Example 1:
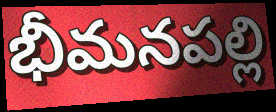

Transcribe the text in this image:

భీమనపల్లి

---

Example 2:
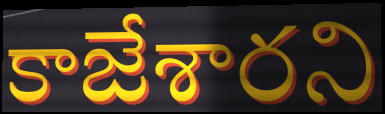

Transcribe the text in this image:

కాజేశారని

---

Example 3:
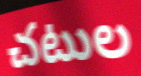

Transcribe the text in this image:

చటుల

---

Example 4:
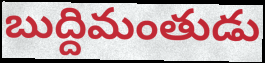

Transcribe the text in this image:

బుద్దిమంతుడు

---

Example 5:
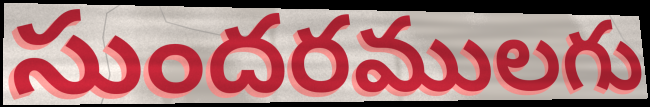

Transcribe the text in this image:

సుందరములగు